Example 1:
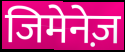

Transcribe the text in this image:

जिमेनेज़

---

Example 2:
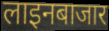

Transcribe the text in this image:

लाइनबाजार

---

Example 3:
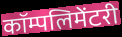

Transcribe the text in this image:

कॉम्पलिमेंटरी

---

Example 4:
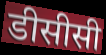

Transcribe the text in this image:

डीसीसी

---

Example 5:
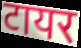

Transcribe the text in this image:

टायर